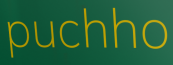
puchho